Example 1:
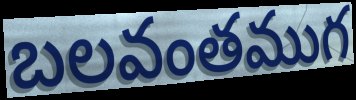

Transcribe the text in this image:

బలవంతముగ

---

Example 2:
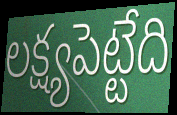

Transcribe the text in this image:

లక్ష్యపెట్టేది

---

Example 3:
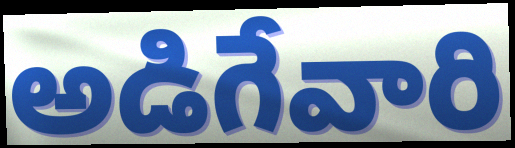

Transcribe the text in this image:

అడిగేవారి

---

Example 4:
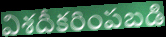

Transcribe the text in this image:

విశదీకరింపబడి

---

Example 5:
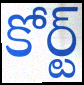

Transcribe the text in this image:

కోర్ట్